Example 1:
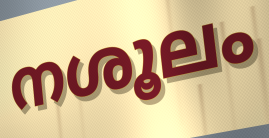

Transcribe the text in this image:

നശൂലം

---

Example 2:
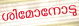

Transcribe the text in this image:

ശിമോനോടു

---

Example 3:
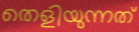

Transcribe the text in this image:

തെളിയുന്നത്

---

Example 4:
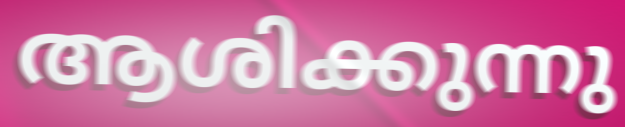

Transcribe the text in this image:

ആശിക്കുന്നു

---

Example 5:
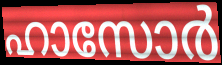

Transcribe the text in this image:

ഹാസോർ